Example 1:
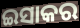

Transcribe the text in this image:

ଇସାକର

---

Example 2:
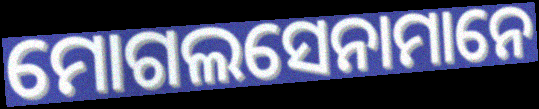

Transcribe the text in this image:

ମୋଗଲସେନାମାନେ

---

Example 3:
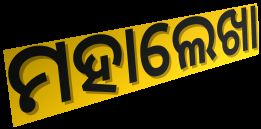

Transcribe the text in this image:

ମହାଲେଖା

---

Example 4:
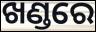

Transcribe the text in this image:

ଖଣ୍ଡରେ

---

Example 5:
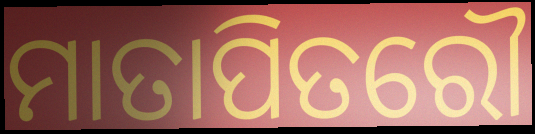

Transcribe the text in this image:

ମାତାପିତରୌ